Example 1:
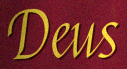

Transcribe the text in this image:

Deus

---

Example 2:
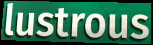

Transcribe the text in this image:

lustrous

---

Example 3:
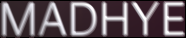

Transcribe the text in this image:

MADHYE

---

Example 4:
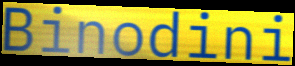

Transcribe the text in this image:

Binodini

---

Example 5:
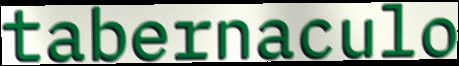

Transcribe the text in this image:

tabernaculo